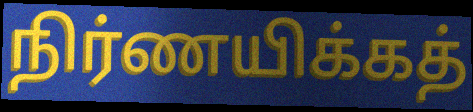
நிர்ணயிக்கத்